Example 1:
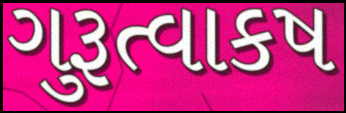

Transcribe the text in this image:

ગુરૂત્વાકષ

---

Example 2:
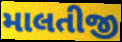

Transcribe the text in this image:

માલતીજી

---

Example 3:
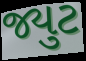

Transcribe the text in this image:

જ્યુટ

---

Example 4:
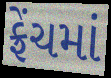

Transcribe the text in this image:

ફ્રેંચમાં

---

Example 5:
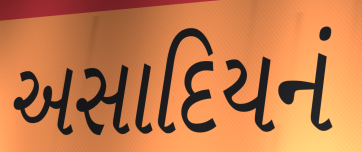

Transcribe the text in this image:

અસાદિયનં